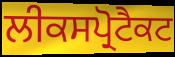
ਲੀਕਸਪ੍ਰੋਟੈਕਟ